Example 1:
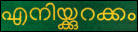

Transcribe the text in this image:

എനിയ്ക്കുറക്കം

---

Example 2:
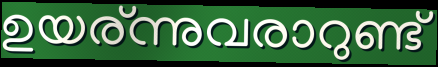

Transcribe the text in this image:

ഉയര്ന്നുവരാറുണ്ട്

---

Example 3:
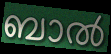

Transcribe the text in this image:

ബാൽ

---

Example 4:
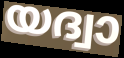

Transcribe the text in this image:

യദ്വാ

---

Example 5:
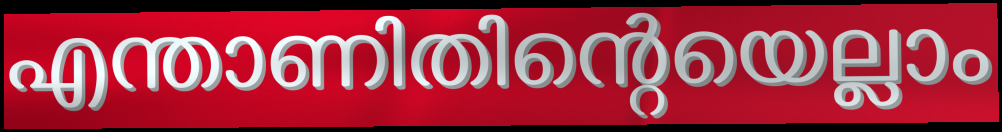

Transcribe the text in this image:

എന്താണിതിന്റെയെല്ലാം